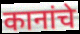
कानांचे